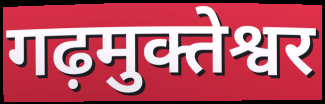
गढ़मुक्तेश्वर